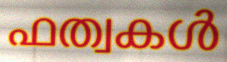
ഫത്വകൾ